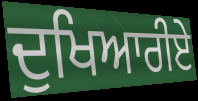
ਦੁਖਿਆਰੀਏ